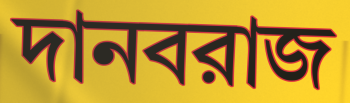
দানবরাজ